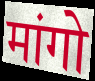
मांगो